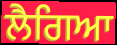
ਲੈਗਿਆ